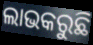
ଲାଭକରୁଛି